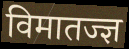
विमातज्ज्ञ